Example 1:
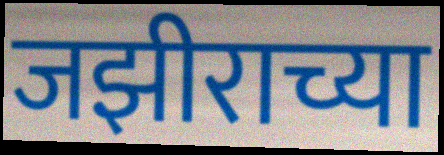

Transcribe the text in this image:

जझीराच्या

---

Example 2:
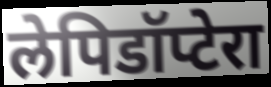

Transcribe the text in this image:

लेपिडॉप्टेरा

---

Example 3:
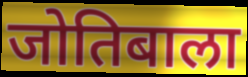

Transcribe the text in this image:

जोतिबाला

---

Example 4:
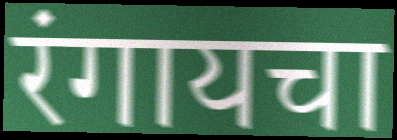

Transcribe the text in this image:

रंगायचा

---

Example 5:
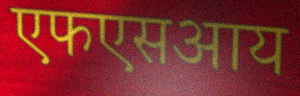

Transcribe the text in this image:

एफएसआय